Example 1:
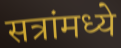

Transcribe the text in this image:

सत्रांमध्ये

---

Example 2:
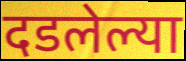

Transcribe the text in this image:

दडलेल्या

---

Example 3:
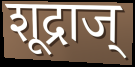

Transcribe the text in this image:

शूद्राज्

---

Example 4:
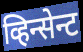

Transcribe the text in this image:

व्हिन्सेन्ट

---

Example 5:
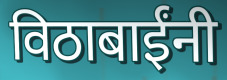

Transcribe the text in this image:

विठाबाईंनी